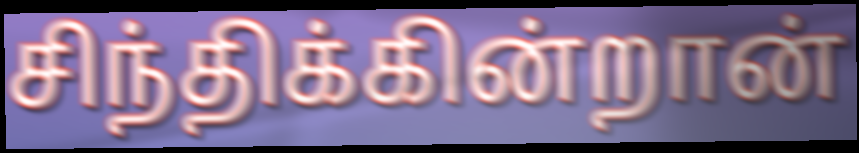
சிந்திக்கின்றான்